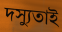
দস্যুতাই